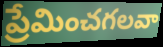
ప్రేమించగలవా